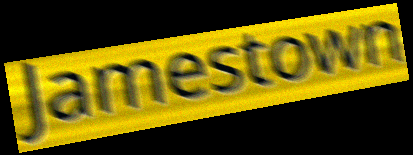
Jamestown